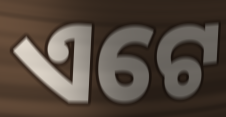
ଏଟେ